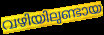
വഴിയിലുണ്ടായ